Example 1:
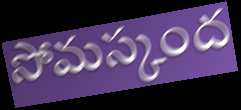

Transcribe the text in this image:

సోమస్కంద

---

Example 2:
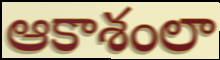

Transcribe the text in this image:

ఆకాశంలా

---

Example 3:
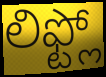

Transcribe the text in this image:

లిఫ్ట్లో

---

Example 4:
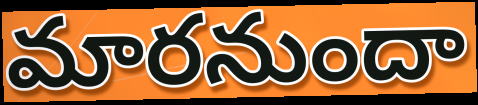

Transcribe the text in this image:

మారనుందా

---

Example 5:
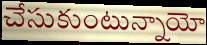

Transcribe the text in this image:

చేసుకుంటున్నాయో